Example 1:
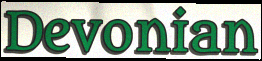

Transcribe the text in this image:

Devonian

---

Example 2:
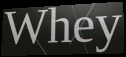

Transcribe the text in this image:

Whey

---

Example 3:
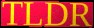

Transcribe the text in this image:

TLDR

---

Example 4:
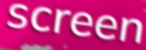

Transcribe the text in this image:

screen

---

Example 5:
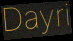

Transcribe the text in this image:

Dayri